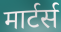
मार्टर्स